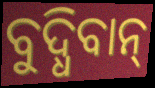
ବୁଦ୍ଧିବାନ୍